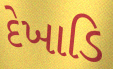
દેખાડિ